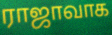
ராஜாவாக